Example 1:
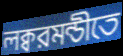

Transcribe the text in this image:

লক্বরমন্ডীতে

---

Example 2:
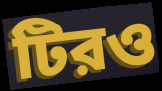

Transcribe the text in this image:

টিরও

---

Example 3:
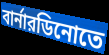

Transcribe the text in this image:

বার্নারডিনোতে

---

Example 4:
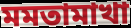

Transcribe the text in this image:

মমতামাখা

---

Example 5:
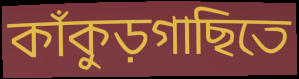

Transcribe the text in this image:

কাঁকুড়গাছিতে